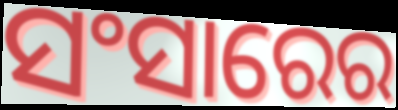
ସଂସାରେର